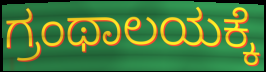
ಗ್ರಂಥಾಲಯಕ್ಕೆ